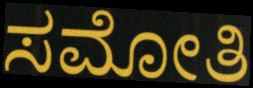
ಸಮೋತಿ